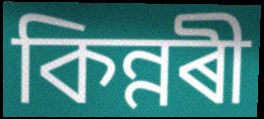
কিন্নৰী